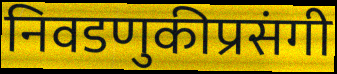
निवडणुकीप्रसंगी